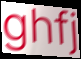
ghfj